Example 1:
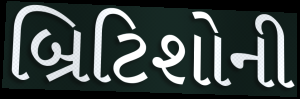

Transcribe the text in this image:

બ્રિટિશોની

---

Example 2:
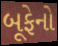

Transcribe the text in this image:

બૂફેનો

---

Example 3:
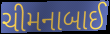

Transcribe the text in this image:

ચીમનાબાઈ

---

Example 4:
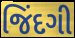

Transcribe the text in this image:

જિંદગી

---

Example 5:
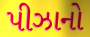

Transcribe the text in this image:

પીઝાનો